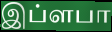
இப்ளபா